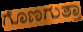
ಗೊಣಗುತ್ತಾ